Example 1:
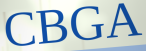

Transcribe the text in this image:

CBGA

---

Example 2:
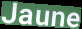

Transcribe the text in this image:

Jaune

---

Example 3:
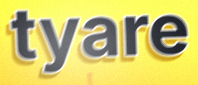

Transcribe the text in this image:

tyare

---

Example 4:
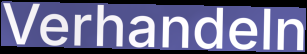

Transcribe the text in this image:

Verhandeln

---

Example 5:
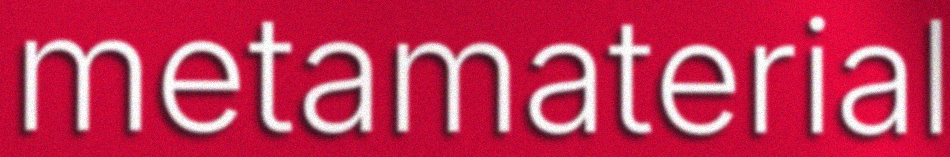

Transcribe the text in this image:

metamaterial